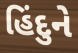
હિંદુને